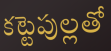
కట్టెపుల్లతో